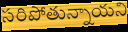
సరిపోతున్నాయని